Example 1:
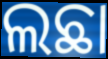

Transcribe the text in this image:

ଲଛା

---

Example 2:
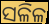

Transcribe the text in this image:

ସଳିଳ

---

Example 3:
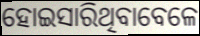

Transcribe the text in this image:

ହୋଇସାରିଥିବାବେଳେ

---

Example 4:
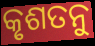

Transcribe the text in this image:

କୃଶତନୁ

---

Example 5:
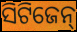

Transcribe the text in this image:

ସିଟିଜେନ୍